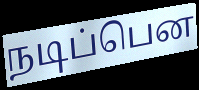
நடிப்பென